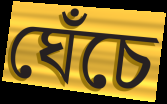
ঘেঁচে